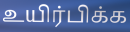
உயிர்பிக்க